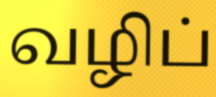
வழிப்